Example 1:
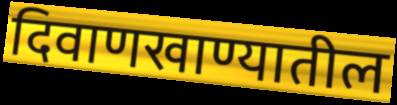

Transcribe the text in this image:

दिवाणखाण्यातील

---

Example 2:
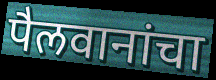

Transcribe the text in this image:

पैलवानांचा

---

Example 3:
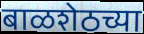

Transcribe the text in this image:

बाळशेठच्या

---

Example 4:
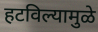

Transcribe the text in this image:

हटविल्यामुळे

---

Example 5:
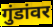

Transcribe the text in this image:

गुंडांवर